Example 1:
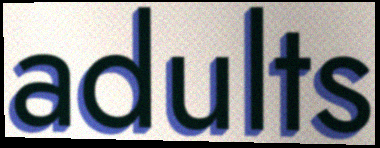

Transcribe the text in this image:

adults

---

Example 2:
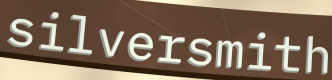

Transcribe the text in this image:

silversmith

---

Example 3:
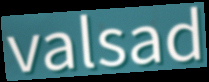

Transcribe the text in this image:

valsad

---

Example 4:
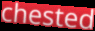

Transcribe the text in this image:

chested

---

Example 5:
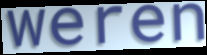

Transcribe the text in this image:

weren